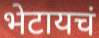
भेटायचं